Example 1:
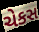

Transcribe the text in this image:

ચેકસ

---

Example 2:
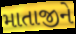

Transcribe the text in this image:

માતાજીને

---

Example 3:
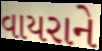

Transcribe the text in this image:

વાયરાને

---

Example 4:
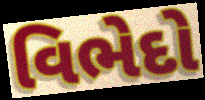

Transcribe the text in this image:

વિભેદો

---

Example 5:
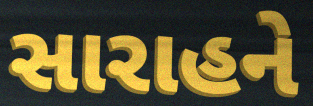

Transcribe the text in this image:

સારાહને